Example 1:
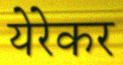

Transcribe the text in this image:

येरेकर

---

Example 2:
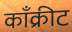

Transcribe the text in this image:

काँक्रीट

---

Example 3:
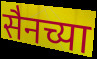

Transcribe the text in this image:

सैनच्या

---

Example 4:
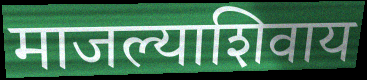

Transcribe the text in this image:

माजल्याशिवाय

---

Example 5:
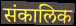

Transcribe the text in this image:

संकालिक